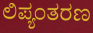
ಲಿಪ್ಯಂತರಣ